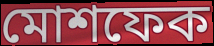
মোশফেক